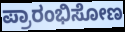
ಪ್ರಾರಂಭಿಸೋಣ